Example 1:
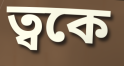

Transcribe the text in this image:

ত্বকে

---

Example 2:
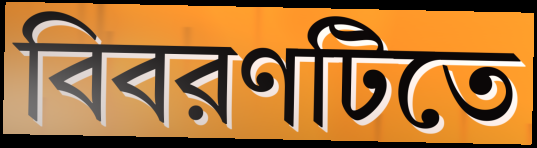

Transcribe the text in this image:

বিবরণটিতে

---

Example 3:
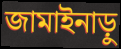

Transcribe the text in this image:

জামাইনাড়ু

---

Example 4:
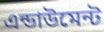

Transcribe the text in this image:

এন্ডাউমেন্ট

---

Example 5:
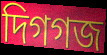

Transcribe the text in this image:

দিগগজ